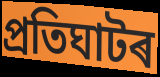
প্ৰতিঘাটৰ